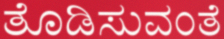
ತೊಡಿಸುವಂತೆ